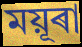
ময়ূৰা